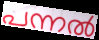
പന്നൽ